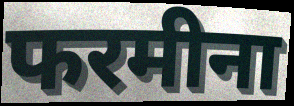
फरमीना